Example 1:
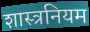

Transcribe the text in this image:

शास्त्रनियम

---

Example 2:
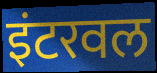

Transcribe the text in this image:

इंटरवल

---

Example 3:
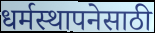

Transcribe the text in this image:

धर्मस्थापनेसाठी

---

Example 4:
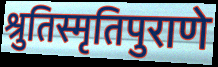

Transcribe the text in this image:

श्रुतिस्मृतिपुराणे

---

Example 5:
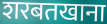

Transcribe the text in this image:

शरबतखाना